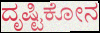
ದೃಷ್ಟಿಕೋನ